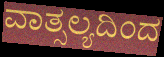
ವಾತ್ಸಲ್ಯದಿಂದ